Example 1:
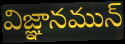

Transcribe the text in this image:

విజ్ఞానమున్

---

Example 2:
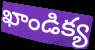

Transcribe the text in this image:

ఖాండిక్య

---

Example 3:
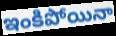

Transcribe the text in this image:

ఇంకిపోయినా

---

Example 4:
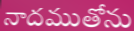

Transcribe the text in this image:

నాదముతోను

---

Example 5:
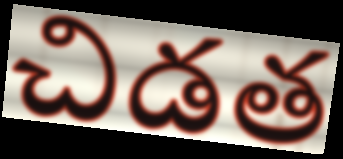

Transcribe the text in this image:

చిడత